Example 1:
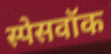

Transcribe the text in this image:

स्पेसवॉक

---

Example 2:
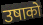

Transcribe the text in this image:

उषाको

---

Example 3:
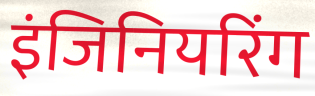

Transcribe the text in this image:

इंजिनियरिंग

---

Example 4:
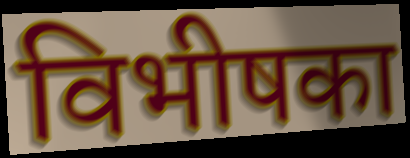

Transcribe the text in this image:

विभीषका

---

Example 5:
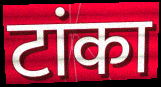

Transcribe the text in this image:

टांका